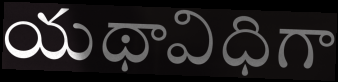
యథావిధిగా